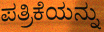
ಪತ್ರಿಕೆಯನ್ನು